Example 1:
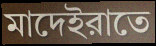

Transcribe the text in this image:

মাদেইরাতে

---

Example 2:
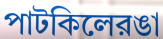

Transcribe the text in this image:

পাটকিলেরঙা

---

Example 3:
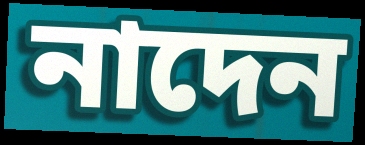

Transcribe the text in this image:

নাদেন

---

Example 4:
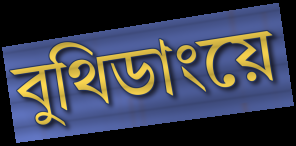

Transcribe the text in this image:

বুথিডাংয়ে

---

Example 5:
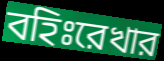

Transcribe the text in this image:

বহিঃরেখার